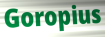
Goropius